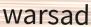
warsad